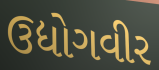
ઉદ્યોગવીર